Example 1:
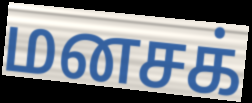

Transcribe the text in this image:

மனசக்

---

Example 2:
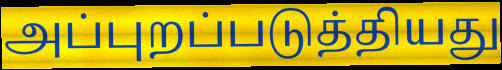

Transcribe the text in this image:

அப்புறப்படுத்தியது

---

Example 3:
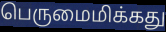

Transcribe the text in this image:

பெருமைமிக்கது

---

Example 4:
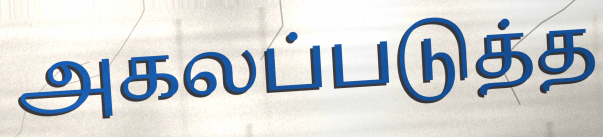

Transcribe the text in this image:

அகலப்படுத்த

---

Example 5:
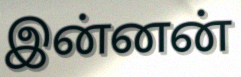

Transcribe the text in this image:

இன்னன்